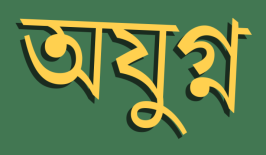
অযুগ্ন